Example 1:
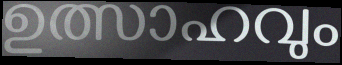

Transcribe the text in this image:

ഉത്സാഹവും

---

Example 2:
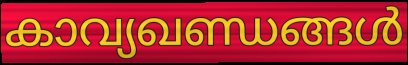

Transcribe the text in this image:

കാവ്യഖണ്ഡങ്ങൾ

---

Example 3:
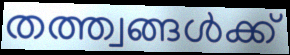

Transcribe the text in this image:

തത്ത്വങ്ങൾക്ക്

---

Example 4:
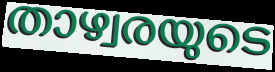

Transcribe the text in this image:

താഴ്വരയുടെ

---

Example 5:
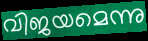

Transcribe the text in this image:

വിജയമെന്നു